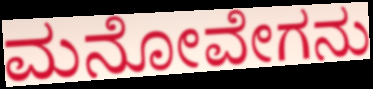
ಮನೋವೇಗನು